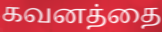
கவனத்தை